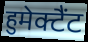
हुमेक्टैंट